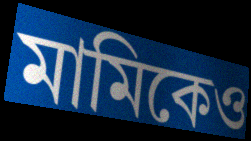
মামিকেও